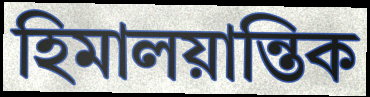
হিমালয়ান্তিক